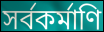
সর্বকর্মাণি